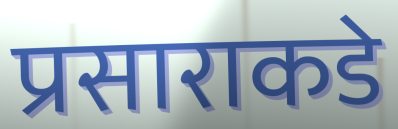
प्रसाराकडे